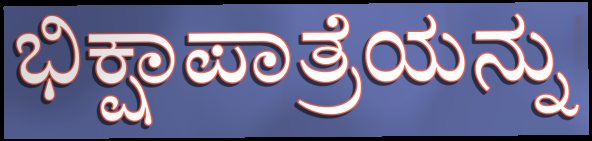
ಭಿಕ್ಷಾಪಾತ್ರೆಯನ್ನು